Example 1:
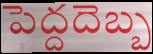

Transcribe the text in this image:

పెద్దదెబ్బ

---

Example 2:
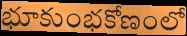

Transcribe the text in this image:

భూకుంభకోణంలో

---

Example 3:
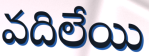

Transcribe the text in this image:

వదిలేయి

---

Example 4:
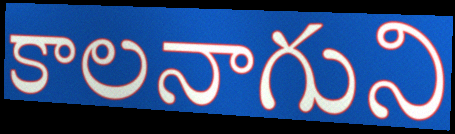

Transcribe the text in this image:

కాలనాగుని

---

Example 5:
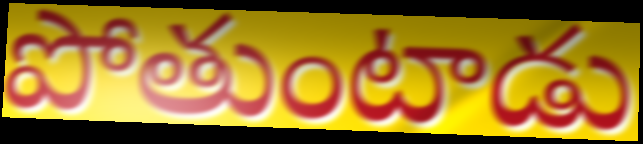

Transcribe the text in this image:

పోతుంటాడు